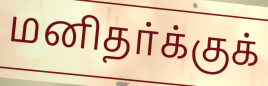
மனிதர்க்குக்